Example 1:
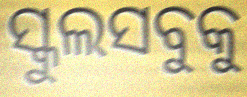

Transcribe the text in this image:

ସ୍କୁଲସବୁକୁ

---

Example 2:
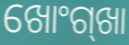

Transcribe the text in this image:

ଖୋଂଗ୍‍ଖା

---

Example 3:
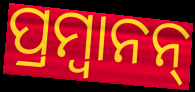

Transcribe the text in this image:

ପ୍ରମ୍ବାନନ୍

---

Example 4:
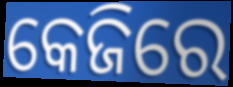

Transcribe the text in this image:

କେଜିରେ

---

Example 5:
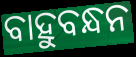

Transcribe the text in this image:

ବାହୁବନ୍ଧନ